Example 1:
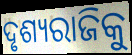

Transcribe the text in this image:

ଦୃଶ୍ୟରାଜିକୁ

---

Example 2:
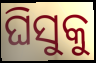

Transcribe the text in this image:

ଘିସୁକୁ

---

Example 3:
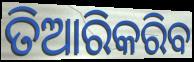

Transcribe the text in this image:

ତିଆରିକରିବ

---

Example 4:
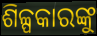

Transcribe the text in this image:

ଶିଳ୍ପକାରଙ୍କୁ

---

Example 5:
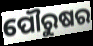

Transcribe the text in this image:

ପୌରୁଷର